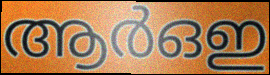
ആർഒഇ